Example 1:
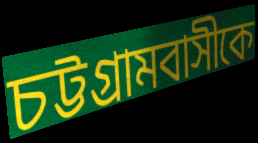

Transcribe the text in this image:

চট্টগ্রামবাসীকে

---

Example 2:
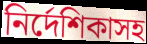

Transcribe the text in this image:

নির্দেশিকাসহ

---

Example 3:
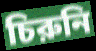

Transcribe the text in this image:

চিরুনি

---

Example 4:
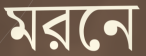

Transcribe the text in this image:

মরনে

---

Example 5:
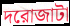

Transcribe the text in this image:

দরোজাটা